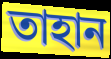
তাহান